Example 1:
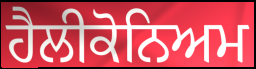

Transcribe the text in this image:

ਹੈਲੀਕੋਨਿਅਮ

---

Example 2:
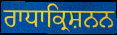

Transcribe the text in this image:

ਰਾਧਾਕ੍ਰਿਸ਼ਨਨ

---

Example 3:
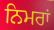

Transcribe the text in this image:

ਨਿਮਰਾਂ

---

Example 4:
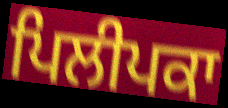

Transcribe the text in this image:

ਪਿਲੀਪਕਾ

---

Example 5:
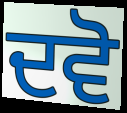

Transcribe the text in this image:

ਦਵੋ